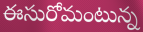
ఈసురోమంటున్న